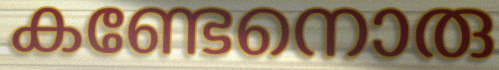
കണ്ടേനൊരു